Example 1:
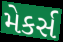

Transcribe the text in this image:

મેકર્સ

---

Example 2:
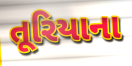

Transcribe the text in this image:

તૂરિયાના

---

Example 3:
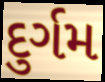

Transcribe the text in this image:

દુર્ગમ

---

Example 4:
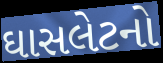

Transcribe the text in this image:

ઘાસલેટનો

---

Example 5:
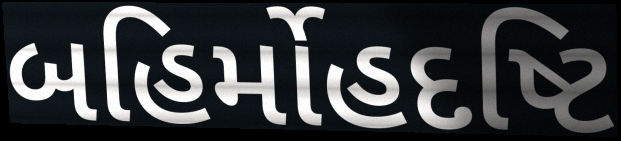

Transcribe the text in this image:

બહિર્મોહદષ્ટિ